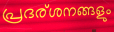
പ്രദര്ശനങ്ങളും